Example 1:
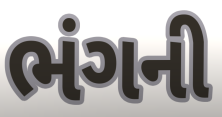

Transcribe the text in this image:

ભંગની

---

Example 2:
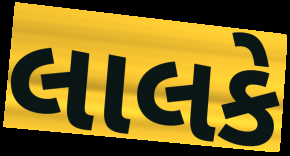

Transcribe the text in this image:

લાલકે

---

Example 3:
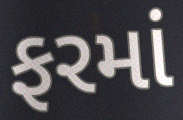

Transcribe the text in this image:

ફરમાં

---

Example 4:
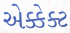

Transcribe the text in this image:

એક્કેક્ટ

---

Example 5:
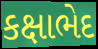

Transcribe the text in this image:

કક્ષાભેદ